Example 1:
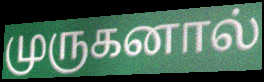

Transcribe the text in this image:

முருகனால்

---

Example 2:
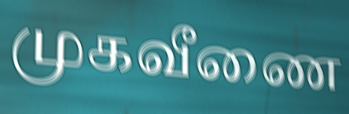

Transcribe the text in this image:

முகவீணை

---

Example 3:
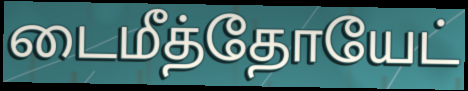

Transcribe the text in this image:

டைமீத்தோயேட்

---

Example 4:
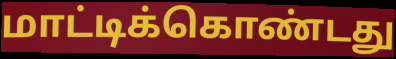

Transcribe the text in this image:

மாட்டிக்கொண்டது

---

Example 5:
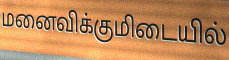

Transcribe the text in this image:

மனைவிக்குமிடையில்